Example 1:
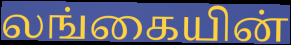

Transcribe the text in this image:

லங்கையின்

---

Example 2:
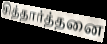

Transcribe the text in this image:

சித்தார்த்தனை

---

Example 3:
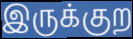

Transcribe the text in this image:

இருக்குற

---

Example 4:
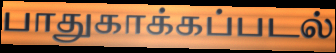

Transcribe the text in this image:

பாதுகாக்கப்படல்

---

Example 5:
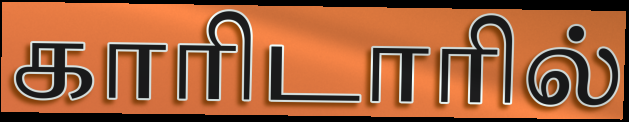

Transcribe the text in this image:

காரிடாரில்